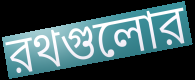
রথগুলোর